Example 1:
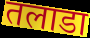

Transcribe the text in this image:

तलाडा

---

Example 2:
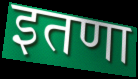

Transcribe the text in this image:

इतणा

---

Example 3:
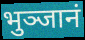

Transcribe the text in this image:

भुञ्जानं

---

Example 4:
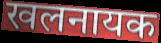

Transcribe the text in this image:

खलनायक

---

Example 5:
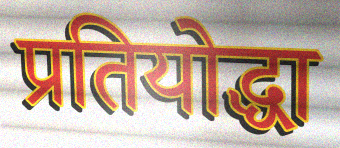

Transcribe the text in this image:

प्रतियोद्धा